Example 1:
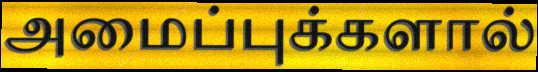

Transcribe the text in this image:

அமைப்புக்களால்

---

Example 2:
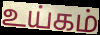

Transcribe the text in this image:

உய்கம்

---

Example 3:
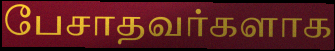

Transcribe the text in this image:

பேசாதவர்களாக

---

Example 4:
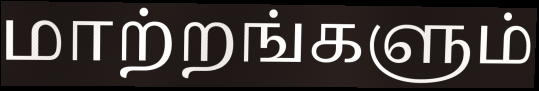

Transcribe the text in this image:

மாற்றங்களும்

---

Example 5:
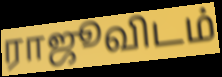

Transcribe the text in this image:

ராஜூவிடம்